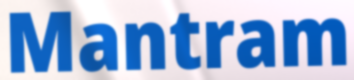
Mantram